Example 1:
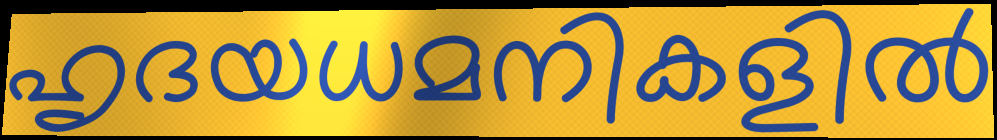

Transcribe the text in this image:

ഹൃദയധമനികളിൽ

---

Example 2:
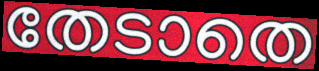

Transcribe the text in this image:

തേടാതെ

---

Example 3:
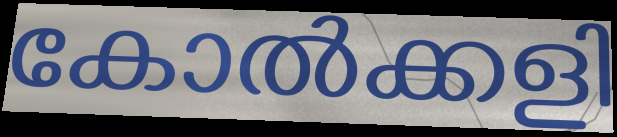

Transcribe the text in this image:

കോൽക്കളി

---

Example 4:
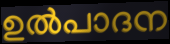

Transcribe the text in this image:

ഉൽപാദന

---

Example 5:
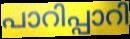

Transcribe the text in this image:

പാറിപ്പാറി